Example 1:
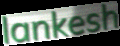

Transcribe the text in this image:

lankesh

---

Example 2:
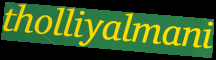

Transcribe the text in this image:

tholliyalmani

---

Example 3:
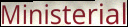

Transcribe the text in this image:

Ministerial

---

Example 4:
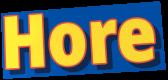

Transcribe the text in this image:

Hore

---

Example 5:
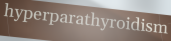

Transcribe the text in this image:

hyperparathyroidism